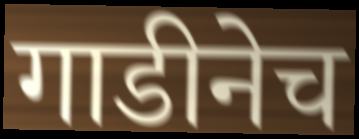
गाडीनेच